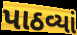
પાઠવ્યાં